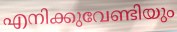
എനിക്കുവേണ്ടിയും